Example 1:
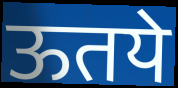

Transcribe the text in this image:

ऊतये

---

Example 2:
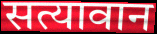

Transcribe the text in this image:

सत्यावान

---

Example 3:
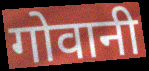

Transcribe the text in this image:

गोवानी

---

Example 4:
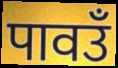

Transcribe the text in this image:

पावउँ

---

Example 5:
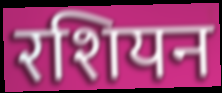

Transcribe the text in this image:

रशियन